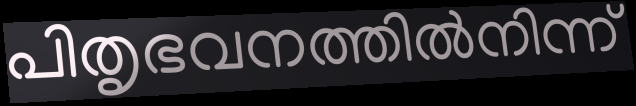
പിതൃഭവനത്തിൽനിന്ന്